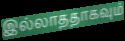
இல்லாததாகவும்